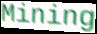
Mining